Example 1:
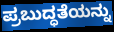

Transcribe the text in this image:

ಪ್ರಬುದ್ಧತೆಯನ್ನು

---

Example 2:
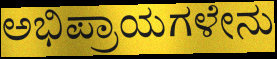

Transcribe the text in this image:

ಅಭಿಪ್ರಾಯಗಳೇನು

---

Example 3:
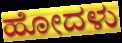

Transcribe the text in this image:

ಹೋದಳು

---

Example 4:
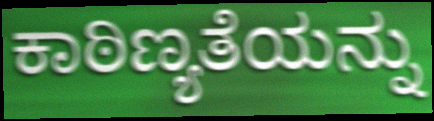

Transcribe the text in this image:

ಕಾಠಿಣ್ಯತೆಯನ್ನು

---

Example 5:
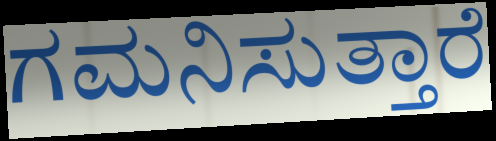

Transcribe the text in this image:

ಗಮನಿಸುತ್ತಾರೆ